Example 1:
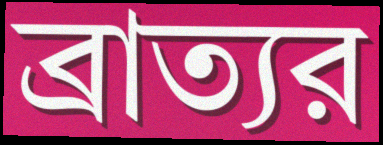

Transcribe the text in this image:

ব্রাত্যর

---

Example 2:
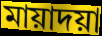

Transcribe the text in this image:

মায়াদয়া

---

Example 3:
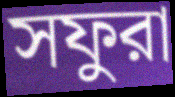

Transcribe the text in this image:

সফুরা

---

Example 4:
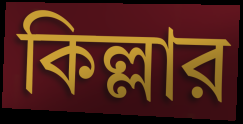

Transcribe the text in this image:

কিল্লার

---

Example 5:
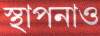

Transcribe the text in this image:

স্থাপনাও